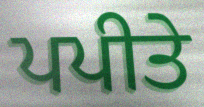
ਪਪੀਤੇ